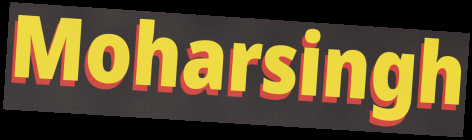
Moharsingh